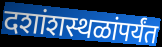
दशांशस्थळांपर्यंत